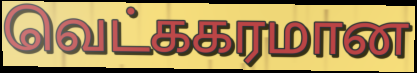
வெட்ககரமான